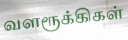
வளரூக்கிகள்